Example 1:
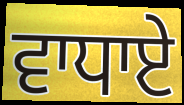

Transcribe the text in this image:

ਵਾਧਾਏ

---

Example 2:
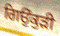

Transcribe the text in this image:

ਗਿਉਂਕੁੜੀ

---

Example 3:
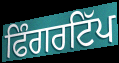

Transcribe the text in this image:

ਫਿੰਗਰਟਿੱਪ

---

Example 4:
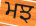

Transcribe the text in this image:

ਮਝ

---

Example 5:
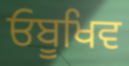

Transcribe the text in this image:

ਓਬੂਖਿਵ